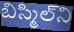
బిస్మిల్‌ని